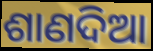
ଶାଣଦିଆ